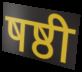
षष्ठी